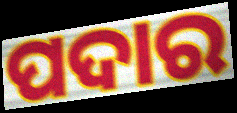
ପଦାର